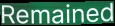
Remained